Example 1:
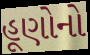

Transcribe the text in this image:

હૂણોનો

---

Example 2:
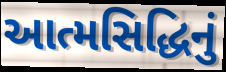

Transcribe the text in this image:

આત્મસિદ્ધિનું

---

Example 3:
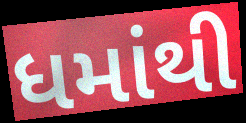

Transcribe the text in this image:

ધમાંથી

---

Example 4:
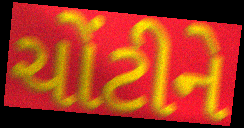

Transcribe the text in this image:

ચોંટીને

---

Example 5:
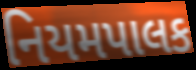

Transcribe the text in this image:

નિયમપાલક